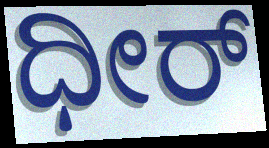
ಧೀರ್